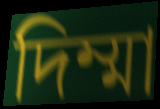
দিম্মা